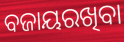
ବଜାୟରଖିବା